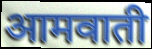
आमवाती